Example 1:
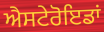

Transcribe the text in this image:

ਐਸਟੇਰੋਇਡਾਂ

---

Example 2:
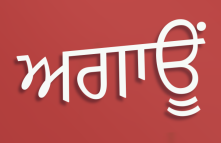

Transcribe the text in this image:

ਅਗਾਊੂਂ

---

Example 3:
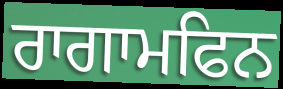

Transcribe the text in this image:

ਰਾਗਾਮਫਿਨ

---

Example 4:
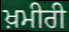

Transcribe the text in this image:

ਖ਼ਮੀਰੀ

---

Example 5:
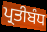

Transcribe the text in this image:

ਪ੍ਰਤੀਬੰਧ